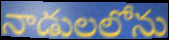
నాడులలోను